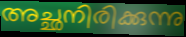
അച്ഛനിരിക്കുന്നു